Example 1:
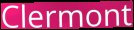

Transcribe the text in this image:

Clermont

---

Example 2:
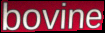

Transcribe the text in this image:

bovine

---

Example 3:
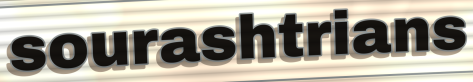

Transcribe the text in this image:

sourashtrians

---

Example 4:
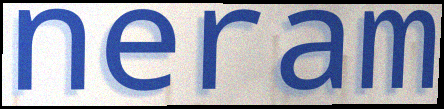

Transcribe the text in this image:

neram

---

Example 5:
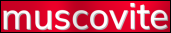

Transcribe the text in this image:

muscovite